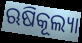
ଋଷିକୂଲ୍ୟା